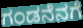
ಗಂಡನೆನಗೆ